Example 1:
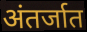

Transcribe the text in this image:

अंतर्जात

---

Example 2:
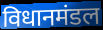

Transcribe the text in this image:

विधानमंडल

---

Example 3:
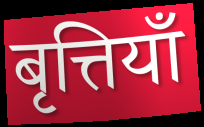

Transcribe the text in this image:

बृत्तियाँ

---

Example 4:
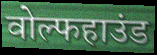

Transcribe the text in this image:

वोल्फहाउंड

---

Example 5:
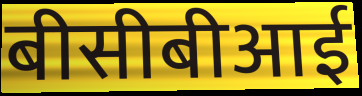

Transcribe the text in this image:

बीसीबीआई